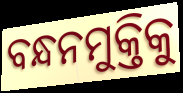
ବନ୍ଧନମୁକ୍ତିକୁ